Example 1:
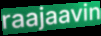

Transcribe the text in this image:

raajaavin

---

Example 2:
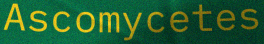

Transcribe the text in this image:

Ascomycetes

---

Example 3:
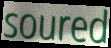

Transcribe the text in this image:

soured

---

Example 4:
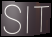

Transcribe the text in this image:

SIT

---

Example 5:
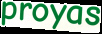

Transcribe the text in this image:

proyas